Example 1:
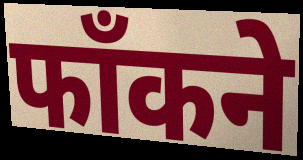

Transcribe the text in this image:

फाँकने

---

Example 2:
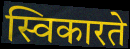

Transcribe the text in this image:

स्विकारते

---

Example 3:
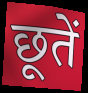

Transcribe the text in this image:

छूतें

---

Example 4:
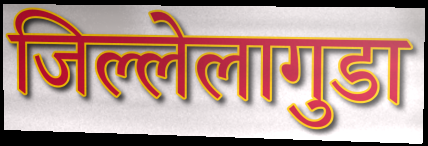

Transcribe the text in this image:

जिल्लेलागुडा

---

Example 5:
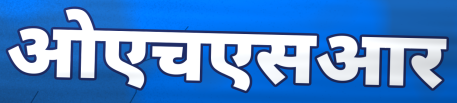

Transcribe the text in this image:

ओएचएसआर